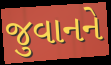
જુવાનને